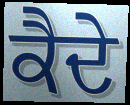
ਕੈਦੇ